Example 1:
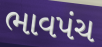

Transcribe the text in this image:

ભાવપંચ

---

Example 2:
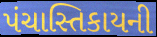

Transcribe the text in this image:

પંચાસ્તિકાયની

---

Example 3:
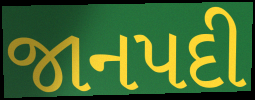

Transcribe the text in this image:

જાનપદી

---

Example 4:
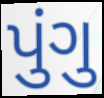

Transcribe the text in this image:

પુંગુ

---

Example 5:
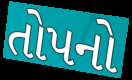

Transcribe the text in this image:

તોપનો